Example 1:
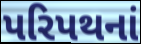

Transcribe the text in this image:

પરિપથનાં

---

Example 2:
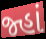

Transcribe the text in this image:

જ્હાં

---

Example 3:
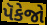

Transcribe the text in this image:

પૅકેજો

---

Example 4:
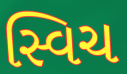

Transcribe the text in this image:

સ્વિચ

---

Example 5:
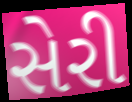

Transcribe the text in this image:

સેરી